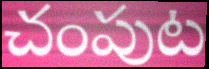
చంపుట